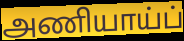
அணியாய்ப்